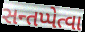
સન્તપ્પેત્વા